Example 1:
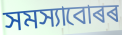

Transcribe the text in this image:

সমস্যাবোৰৰ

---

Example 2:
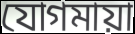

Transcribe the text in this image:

যোগমায়া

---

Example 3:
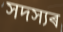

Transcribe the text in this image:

সদস্যৰ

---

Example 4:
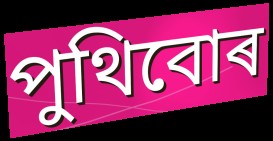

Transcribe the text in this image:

পুথিবোৰ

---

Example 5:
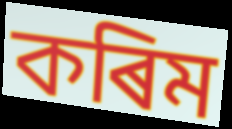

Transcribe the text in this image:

কৰিম